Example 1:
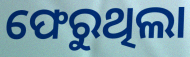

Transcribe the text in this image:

ଫେରୁଥିଲା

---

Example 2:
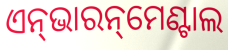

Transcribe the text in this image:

ଏନ୍‌ଭାରନ୍‌ମେଣ୍ଟାଲ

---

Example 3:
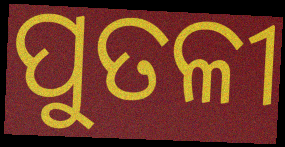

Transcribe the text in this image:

ପୁତଳୀ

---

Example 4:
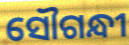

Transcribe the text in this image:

ସୌଗନ୍ଧୀ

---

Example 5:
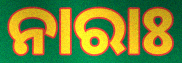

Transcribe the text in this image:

ନାରାଃ